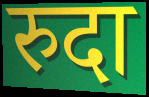
रुदा